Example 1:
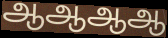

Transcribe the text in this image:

ஆஆஆஆ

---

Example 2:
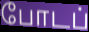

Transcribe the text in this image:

போடப்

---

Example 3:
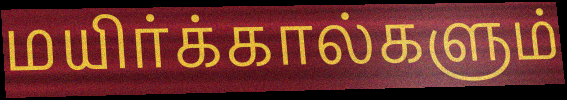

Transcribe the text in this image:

மயிர்க்கால்களும்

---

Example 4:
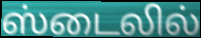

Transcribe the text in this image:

ஸ்டைலில்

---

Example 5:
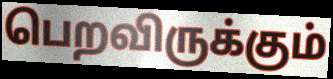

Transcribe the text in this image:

பெறவிருக்கும்